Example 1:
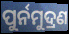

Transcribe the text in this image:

ପୁର୍ନମୁଦ୍ରଣ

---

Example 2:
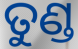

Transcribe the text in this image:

ତୁଣ୍ଡ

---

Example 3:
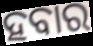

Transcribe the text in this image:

ହବାର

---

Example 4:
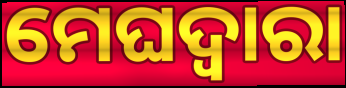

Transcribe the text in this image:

ମେଘଦ୍ୱାରା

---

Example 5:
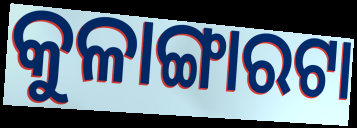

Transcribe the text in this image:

କୁଳାଙ୍ଗାରଟା